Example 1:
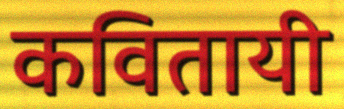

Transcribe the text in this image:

कवितायी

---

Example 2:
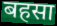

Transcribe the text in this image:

बहसा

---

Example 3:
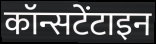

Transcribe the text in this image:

कॉन्सटेंटाइन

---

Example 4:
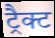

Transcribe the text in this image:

ट्रैक्ट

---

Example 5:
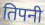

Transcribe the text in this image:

तिपनी